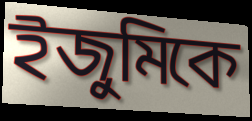
ইজুমিকে